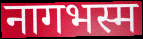
नागभस्म